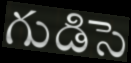
గుడిసె